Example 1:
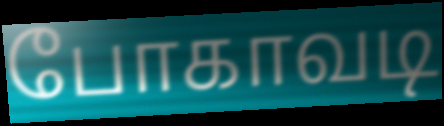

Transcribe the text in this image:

போகாவடி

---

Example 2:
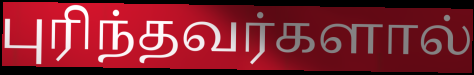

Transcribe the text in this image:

புரிந்தவர்களால்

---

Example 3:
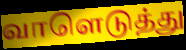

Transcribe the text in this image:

வாளெடுத்து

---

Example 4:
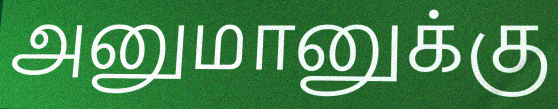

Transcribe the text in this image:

அனுமானுக்கு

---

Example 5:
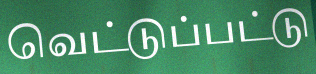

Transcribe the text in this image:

வெட்டுப்பட்டு